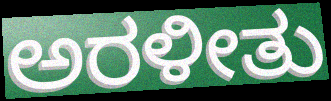
ಅರಳೀತು